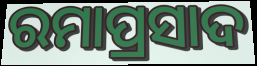
ରମାପ୍ରସାଦ